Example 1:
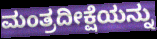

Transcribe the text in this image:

ಮಂತ್ರದೀಕ್ಷೆಯನ್ನು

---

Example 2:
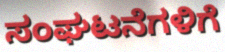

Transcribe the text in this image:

ಸಂಘಟನೆಗಳಿಗೆ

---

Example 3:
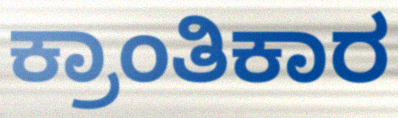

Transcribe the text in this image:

ಕ್ರಾಂತಿಕಾರ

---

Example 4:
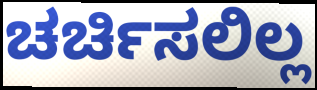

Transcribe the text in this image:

ಚರ್ಚಿಸಲಿಲ್ಲ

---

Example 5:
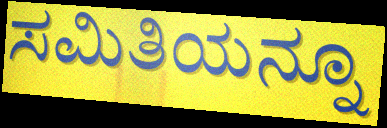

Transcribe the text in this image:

ಸಮಿತಿಯನ್ನೂ